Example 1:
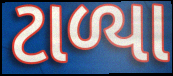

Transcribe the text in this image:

ટાળ્યા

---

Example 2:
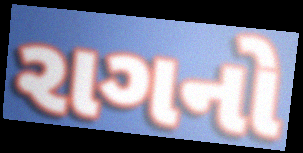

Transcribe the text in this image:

રાગનો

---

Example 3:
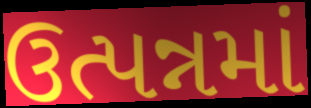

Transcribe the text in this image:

ઉત્પન્નમાં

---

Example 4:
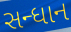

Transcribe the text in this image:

સન્ધાન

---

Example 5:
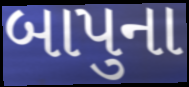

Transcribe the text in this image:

બાપુના